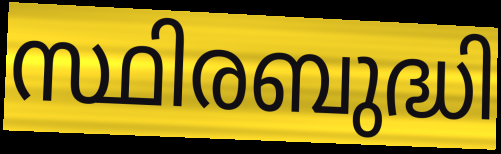
സ്ഥിരബുദ്ധി